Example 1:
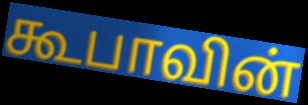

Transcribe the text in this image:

கூபாவின்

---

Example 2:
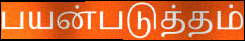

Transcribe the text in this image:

பயன்படுத்தம்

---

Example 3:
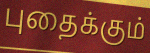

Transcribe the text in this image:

புதைக்கும்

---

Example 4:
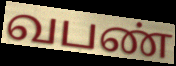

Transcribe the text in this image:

வபண்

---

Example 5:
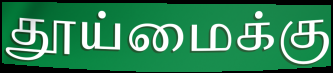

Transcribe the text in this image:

தூய்மைக்கு